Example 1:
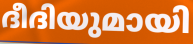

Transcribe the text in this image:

ദീദിയുമായി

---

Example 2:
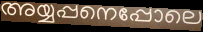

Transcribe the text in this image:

അയ്യപ്പനെപ്പോലെ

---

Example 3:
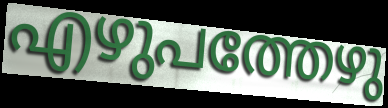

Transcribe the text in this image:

എഴുപത്തേഴു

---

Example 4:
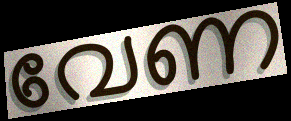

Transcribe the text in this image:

വേണ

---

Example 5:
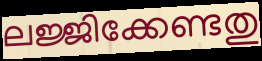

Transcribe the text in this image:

ലജ്ജിക്കേണ്ടതു